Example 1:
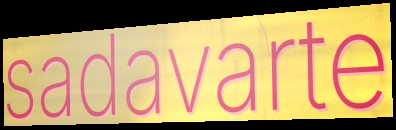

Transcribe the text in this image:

sadavarte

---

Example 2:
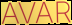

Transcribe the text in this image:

AVAR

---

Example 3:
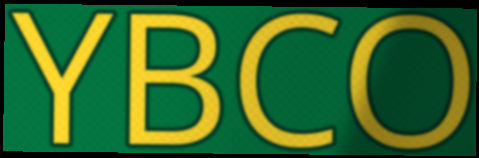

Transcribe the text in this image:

YBCO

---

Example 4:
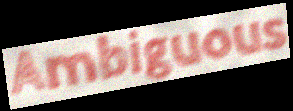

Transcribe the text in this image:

Ambiguous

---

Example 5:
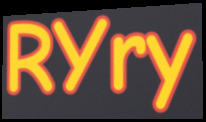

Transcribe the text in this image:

RYry